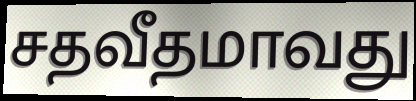
சதவீதமாவது